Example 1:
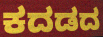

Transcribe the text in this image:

ಕದಡದ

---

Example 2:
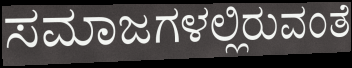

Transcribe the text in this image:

ಸಮಾಜಗಳಲ್ಲಿರುವಂತೆ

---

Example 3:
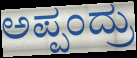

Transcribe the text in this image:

ಅಪ್ಪಂದ್ರು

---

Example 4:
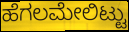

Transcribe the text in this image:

ಹೆಗಲಮೇಲಿಟ್ಟು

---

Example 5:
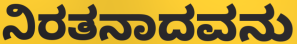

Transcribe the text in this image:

ನಿರತನಾದವನು